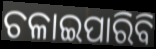
ଚଳାଇପାରିବି